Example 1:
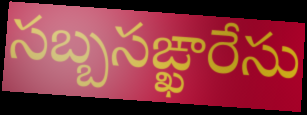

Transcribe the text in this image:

సబ్బసఙ్ఖారేసు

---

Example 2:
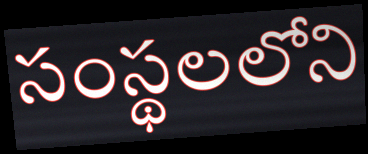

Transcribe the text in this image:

సంస్థలలోని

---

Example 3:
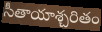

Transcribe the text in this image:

సీతాయాశ్చరితం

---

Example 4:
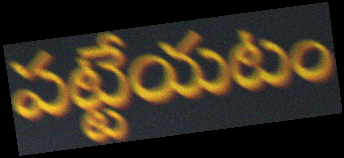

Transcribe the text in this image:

పట్టేయటం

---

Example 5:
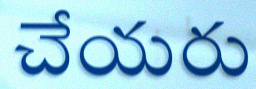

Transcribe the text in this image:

చేయరు